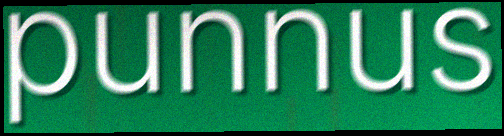
punnus